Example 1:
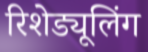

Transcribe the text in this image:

रिशेड्यूलिंग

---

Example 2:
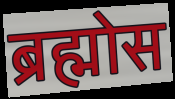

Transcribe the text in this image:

ब्रह्मोस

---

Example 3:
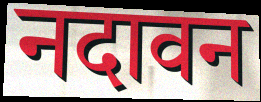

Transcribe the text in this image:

नदावन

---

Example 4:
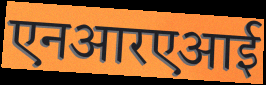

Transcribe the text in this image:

एनआरएआई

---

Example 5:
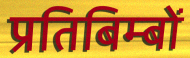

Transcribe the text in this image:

प्रतिबिम्बों